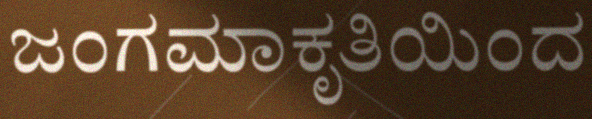
ಜಂಗಮಾಕೃತಿಯಿಂದ